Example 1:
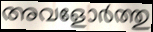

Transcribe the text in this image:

അവളോർത്തു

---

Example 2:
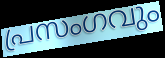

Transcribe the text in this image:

പ്രസംഗവും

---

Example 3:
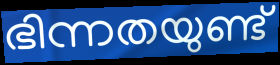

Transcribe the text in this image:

ഭിന്നതയുണ്ട്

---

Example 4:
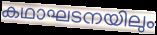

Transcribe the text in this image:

കഥാഘടനയിലും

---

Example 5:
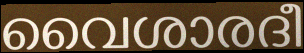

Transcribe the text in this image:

വൈശാരദീ